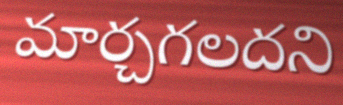
మార్చగలదని